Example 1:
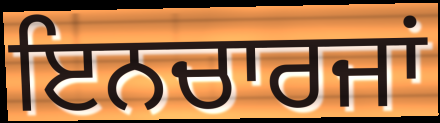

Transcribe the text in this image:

ਇਨਚਾਰਜਾਂ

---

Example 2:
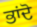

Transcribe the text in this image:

ਭਾਂਦੋ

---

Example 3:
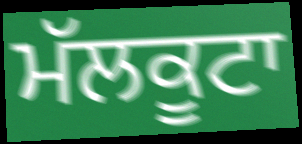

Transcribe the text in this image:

ਮੱਲਕੂਟਾ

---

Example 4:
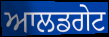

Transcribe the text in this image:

ਆਲਡਗੇਟ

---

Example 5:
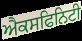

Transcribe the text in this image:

ਐਕਸਫਿਨਿਟੀ